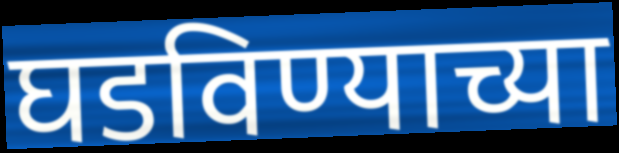
घडविण्याच्या